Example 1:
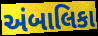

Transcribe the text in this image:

અંબાલિકા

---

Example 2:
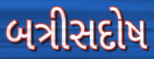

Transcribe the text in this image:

બત્રીસદોષ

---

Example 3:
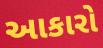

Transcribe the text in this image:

આકારો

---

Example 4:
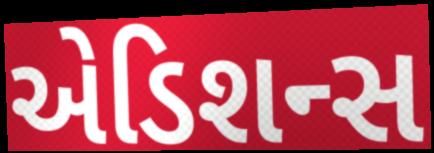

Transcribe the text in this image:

એડિશન્સ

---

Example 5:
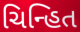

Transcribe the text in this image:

ચિન્હિત